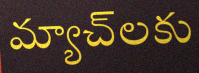
మ్యాచ్‌లకు